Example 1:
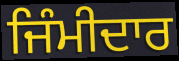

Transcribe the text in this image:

ਜਿੰਮੀਦਾਰ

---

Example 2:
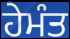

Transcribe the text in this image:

ਹੇਮੰਤ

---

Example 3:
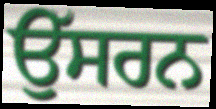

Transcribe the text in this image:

ਉੱਸਰਨ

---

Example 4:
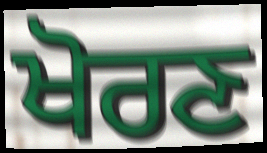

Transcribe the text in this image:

ਖੋਰਣ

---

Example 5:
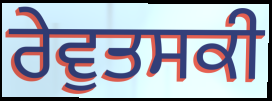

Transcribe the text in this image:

ਰੇਵੁਤਸਕੀ